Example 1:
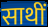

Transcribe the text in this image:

साथीं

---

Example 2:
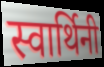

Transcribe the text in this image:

स्वार्थिनी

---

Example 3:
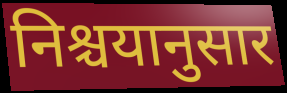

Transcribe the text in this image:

निश्चयानुसार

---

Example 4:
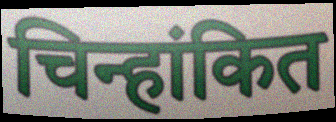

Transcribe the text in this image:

चिन्हांकित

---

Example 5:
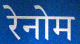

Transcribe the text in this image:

रेनोम